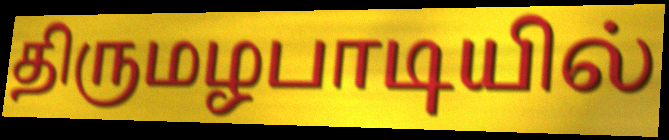
திருமழபாடியில்